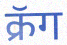
क्रॅग